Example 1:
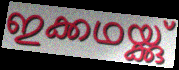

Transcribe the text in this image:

ഇക്കഥയ്ക്കു്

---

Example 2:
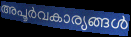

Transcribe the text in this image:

അപൂർവകാര്യങ്ങൾ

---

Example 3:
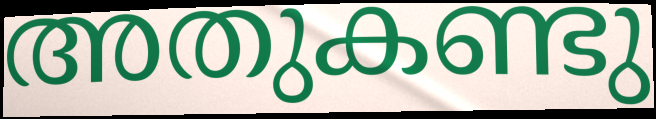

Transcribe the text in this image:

അതുകണ്ടു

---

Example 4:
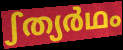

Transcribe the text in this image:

ഽത്യർഥം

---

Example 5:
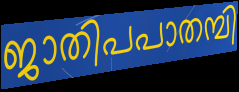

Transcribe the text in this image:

ജാതിപപാതമ്പി